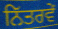
ਨਿੱਤਰਵੇਂ